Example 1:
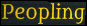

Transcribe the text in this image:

Peopling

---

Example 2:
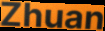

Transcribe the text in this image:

Zhuan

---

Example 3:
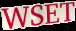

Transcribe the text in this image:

WSET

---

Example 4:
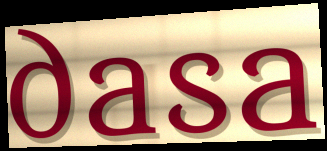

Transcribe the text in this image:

dasa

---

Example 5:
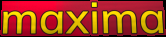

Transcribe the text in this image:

maxima